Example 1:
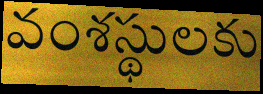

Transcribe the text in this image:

వంశస్థులకు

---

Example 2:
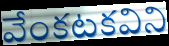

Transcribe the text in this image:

వేంకటకవిని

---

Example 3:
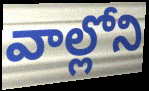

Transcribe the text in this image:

వాల్లోని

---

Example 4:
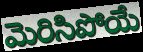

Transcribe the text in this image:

మెరిసిపోయే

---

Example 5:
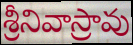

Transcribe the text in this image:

శ్రీనివాస్రావు